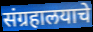
संग्रहालयाचे